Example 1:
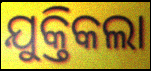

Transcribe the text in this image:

ଯୁକ୍ତିକଲା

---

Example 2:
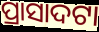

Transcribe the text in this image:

ପ୍ରାସାଦଟା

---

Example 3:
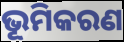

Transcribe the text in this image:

ଭୂମିକରଣ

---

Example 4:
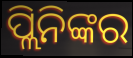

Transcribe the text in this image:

ପ୍ଲିନିଙ୍କର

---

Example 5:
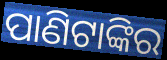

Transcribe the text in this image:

ପାଣିଟାଙ୍କିର